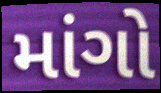
માંગો